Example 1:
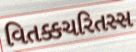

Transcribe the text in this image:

વિતક્કચરિતસ્સ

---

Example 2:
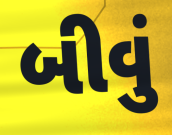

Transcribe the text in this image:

બીવું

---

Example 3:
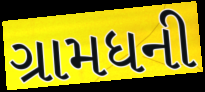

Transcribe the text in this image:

ગ્રામધની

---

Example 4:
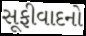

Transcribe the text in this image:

સૂફીવાદનો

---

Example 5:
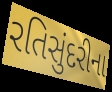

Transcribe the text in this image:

રતિસુંદરીના